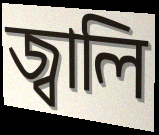
জ্বালি